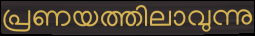
പ്രണയത്തിലാവുന്നു